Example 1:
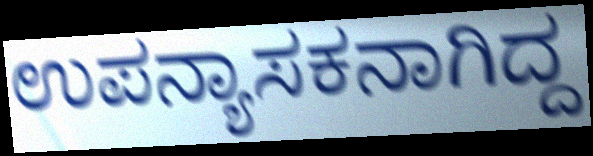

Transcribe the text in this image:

ಉಪನ್ಯಾಸಕನಾಗಿದ್ದ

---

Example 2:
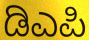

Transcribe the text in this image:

ಡಿಎಪಿ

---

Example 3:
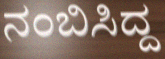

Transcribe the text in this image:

ನಂಬಿಸಿದ್ದ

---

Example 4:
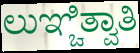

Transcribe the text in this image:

ಲುಞ್ಚಿತ್ವಾತಿ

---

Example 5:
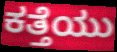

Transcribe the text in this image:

ಕತ್ತೆಯು